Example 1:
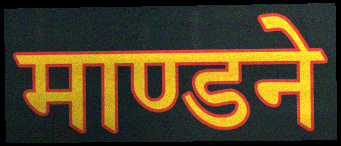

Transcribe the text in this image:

माण्डने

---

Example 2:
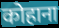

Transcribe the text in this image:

कोहाना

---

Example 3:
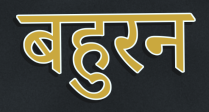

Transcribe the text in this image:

बहुरन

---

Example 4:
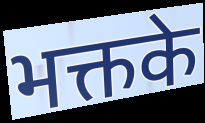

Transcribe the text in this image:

भक्तके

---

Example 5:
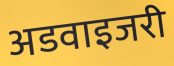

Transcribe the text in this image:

अडवाइजरी